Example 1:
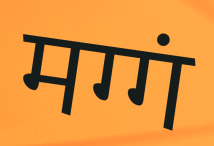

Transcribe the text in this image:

मग्गं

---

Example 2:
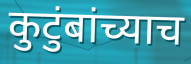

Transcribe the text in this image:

कुटुंबांच्याच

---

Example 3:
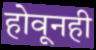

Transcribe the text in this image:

होवूनही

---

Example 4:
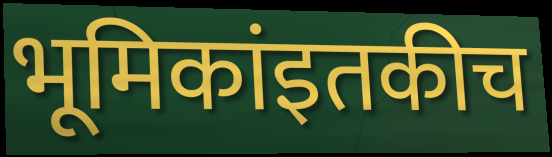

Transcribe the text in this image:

भूमिकांइतकीच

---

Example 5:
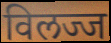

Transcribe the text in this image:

विलज्ज